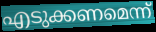
എടുക്കണമെന്ന്